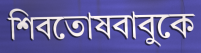
শিবতোষবাবুকে